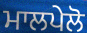
ਮਾਲਪੇਲੋ